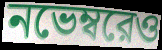
নভেম্বরেও